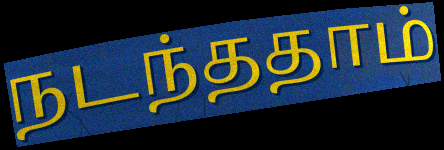
நடந்ததாம்